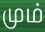
மும்